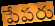
పేపరు